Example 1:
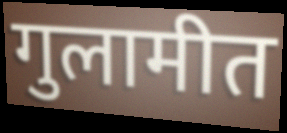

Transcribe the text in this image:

गुलामीत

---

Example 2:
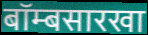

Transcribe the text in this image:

बॉम्बसारखा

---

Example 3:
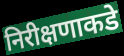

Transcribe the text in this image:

निरीक्षणाकडे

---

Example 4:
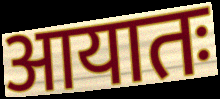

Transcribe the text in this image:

आयातः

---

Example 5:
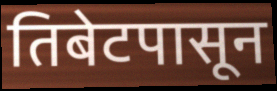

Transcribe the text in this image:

तिबेटपासून